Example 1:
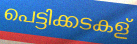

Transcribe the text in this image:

പെട്ടിക്കടകള്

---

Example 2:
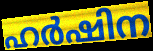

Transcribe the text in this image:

ഹർഷിന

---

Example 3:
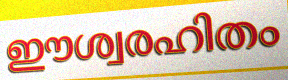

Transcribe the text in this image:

ഈശ്വരഹിതം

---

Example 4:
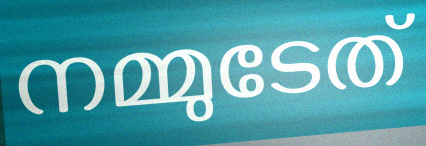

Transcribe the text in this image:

നമ്മുടേത്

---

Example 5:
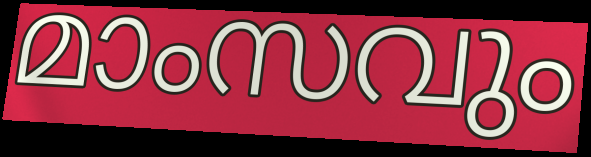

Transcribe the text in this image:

മാംസവും